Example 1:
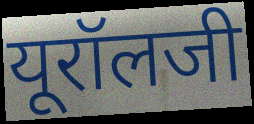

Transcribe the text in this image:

यूरॉलजी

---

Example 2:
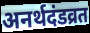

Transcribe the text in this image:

अनर्थदंडव्रत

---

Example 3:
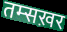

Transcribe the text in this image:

तम्सख़र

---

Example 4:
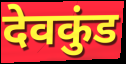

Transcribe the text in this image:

देवकुंड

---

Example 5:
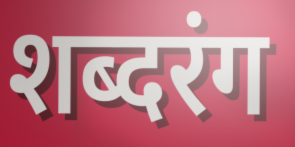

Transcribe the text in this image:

शब्दरंग